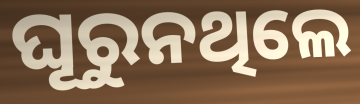
ଘୂରୁନଥିଲେ